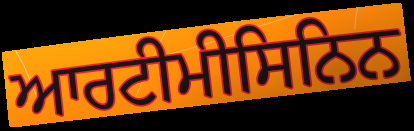
ਆਰਟੀਮੀਸਿਨਿਨ